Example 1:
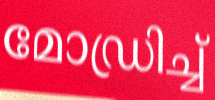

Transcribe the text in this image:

മോഡ്രിച്ച്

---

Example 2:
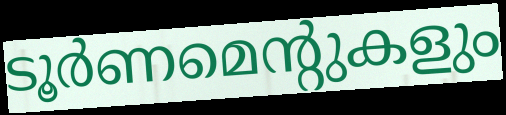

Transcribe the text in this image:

ടൂർണമെന്റുകളും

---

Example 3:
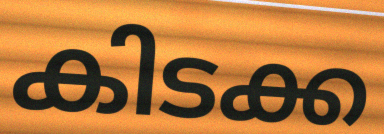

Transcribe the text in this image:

കിടക്ക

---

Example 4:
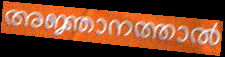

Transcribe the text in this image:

അജ്ഞാനത്താൽ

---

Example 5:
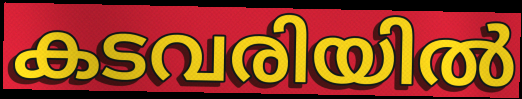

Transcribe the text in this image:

കടവരിയിൽ